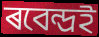
ৰবেন্দ্ৰই